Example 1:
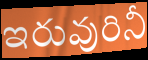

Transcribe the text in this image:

ఇరువురినీ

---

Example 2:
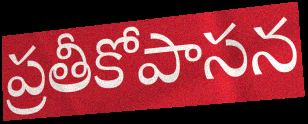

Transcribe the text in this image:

ప్రతీకోపాసన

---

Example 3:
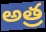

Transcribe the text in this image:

అత్ర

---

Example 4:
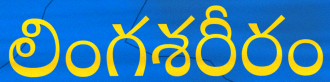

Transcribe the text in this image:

లింగశరీరం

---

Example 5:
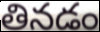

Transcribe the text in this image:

తినడం